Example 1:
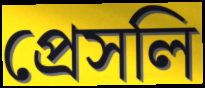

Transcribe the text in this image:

প্রেসলি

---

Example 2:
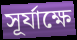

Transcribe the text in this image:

সূর্যাক্ষে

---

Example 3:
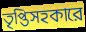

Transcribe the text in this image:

তৃপ্তিসহকারে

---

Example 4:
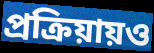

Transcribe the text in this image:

প্রক্রিয়ায়ও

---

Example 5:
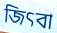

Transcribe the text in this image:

জিৎবা